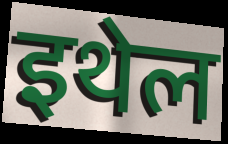
इथेल